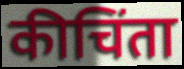
कीचिंता